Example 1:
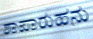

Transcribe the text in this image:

ಶಾಪಾರುಹನು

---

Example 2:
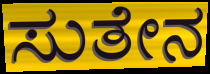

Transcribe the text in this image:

ಸುತೇನ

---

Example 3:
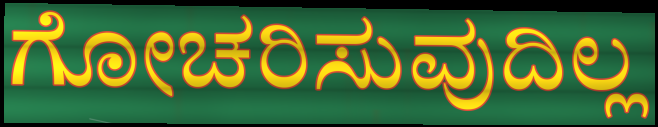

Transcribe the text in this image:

ಗೋಚರಿಸುವುದಿಲ್ಲ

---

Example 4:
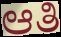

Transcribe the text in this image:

ಆತಿ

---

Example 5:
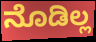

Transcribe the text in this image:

ನೊಡಿಲ್ಲ